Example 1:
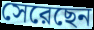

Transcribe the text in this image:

সেরেছেন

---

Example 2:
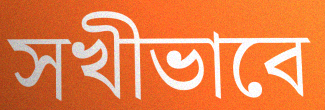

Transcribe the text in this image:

সখীভাবে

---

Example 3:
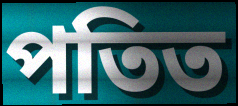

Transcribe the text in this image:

পতিত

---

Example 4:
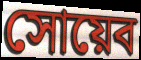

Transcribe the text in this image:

সোয়েব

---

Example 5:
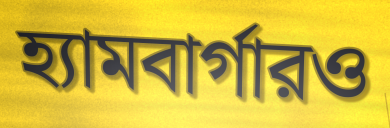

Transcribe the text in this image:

হ্যামবার্গারও